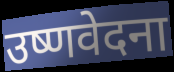
उष्णवेदना